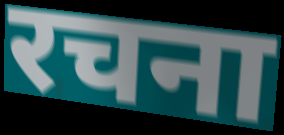
रचना